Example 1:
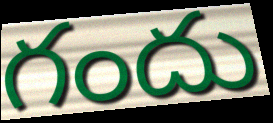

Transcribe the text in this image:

గందు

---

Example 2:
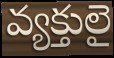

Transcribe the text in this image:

వ్యక్తులై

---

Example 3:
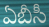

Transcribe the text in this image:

ఏబీసీ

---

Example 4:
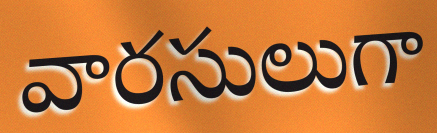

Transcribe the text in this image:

వారసులుగా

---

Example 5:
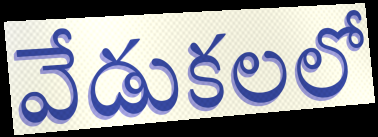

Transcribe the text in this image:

వేడుకలలో